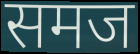
समज